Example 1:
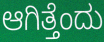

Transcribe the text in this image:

ಆಗಿತ್ತೆಂದು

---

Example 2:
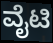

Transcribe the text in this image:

ವೈಟಿ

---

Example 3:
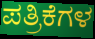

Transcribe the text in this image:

ಪತ್ರಿಕೆಗಳ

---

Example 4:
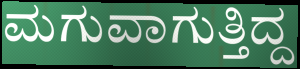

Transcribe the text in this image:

ಮಗುವಾಗುತ್ತಿದ್ದ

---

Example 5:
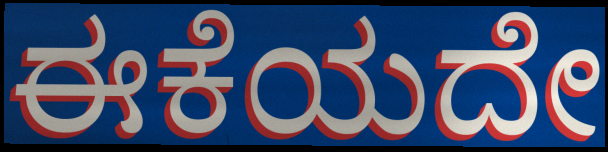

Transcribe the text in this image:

ಈಕೆಯದೇ